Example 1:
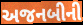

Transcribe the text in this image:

અજનબીની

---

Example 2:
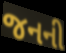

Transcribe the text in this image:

જનની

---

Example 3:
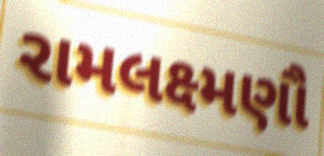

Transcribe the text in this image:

રામલક્ષ્મણૌ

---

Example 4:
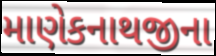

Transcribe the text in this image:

માણેકનાથજીના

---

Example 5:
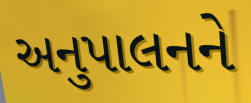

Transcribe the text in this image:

અનુપાલનને